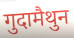
गुदामैथुन